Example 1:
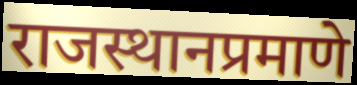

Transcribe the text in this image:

राजस्थानप्रमाणे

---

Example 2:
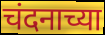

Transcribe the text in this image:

चंदनाच्या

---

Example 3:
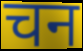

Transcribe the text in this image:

चन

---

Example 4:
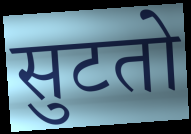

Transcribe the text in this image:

सुटतो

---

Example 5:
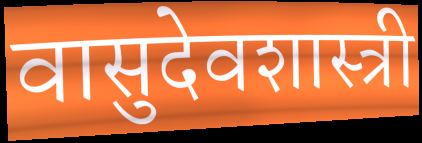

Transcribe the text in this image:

वासुदेवशास्त्री